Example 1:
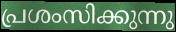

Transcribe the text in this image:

പ്രശംസിക്കുന്നു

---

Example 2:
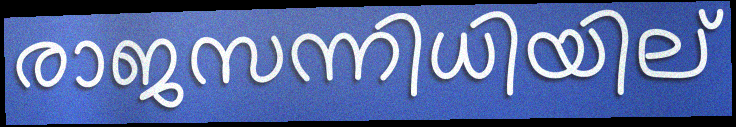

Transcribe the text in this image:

രാജസന്നിധിയില്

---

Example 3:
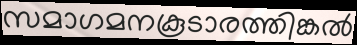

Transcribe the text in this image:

സമാഗമനകൂടാരത്തിങ്കൽ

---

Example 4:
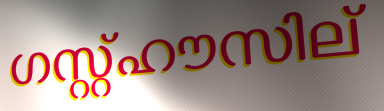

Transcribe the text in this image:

ഗസ്റ്റ്ഹൗസില്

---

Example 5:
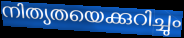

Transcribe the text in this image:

നിത്യതയെക്കുറിച്ചും